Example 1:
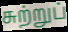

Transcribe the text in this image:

சுற்றுப்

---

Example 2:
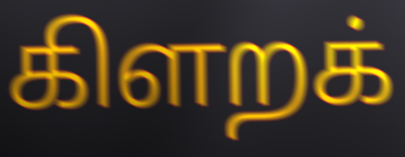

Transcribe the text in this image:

கிளறக்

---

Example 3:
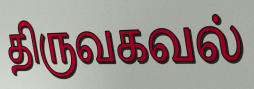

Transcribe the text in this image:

திருவகவல்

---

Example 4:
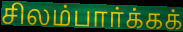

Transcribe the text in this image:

சிலம்பார்க்கக்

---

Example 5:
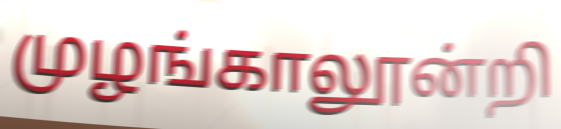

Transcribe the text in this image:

முழங்காலூன்றி